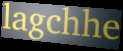
lagchhe